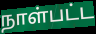
நாள்பட்ட